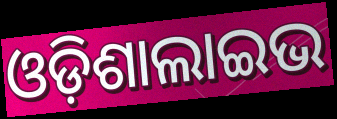
ଓଡ଼ିଶାଲାଇଭ